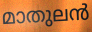
മാതുലൻ